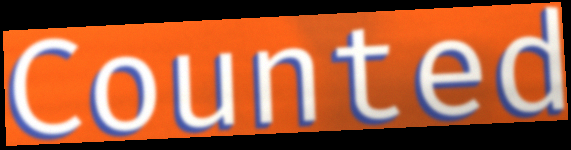
Counted